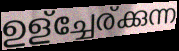
ഉള്ച്ചേര്ക്കുന്ന